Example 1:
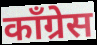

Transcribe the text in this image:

कॉंग्रेस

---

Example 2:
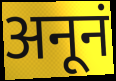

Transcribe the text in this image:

अनूनं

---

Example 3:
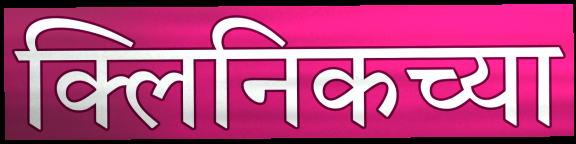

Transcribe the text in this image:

क्लिनिकच्या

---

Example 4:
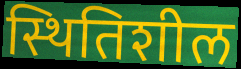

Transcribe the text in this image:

स्थितिशील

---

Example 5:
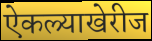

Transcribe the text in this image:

ऐकल्याखेरीज